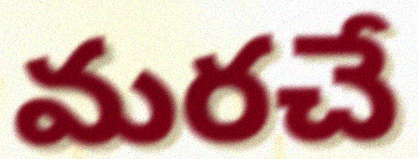
మరచే